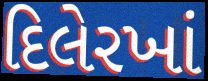
દિલેરખાં